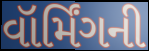
વૉર્મિંગની